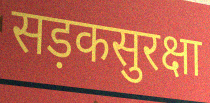
सड़कसुरक्षा